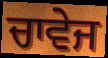
ਚਾਵੇਜ